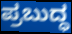
ಪ್ರಬುದ್ಧ